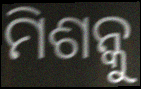
ମିଶନ୍କୁ